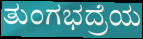
ತುಂಗಭದ್ರೆಯ